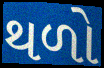
થળો